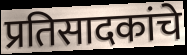
प्रतिसादकांचे